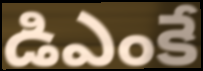
డిఎంకే